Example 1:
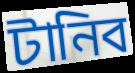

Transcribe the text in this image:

টানিব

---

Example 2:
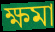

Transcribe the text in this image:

ক্ষমা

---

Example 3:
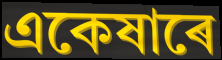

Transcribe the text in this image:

একেষাৰে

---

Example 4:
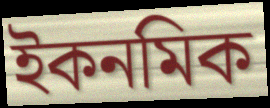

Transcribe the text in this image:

ইকনমিক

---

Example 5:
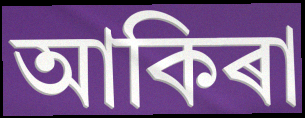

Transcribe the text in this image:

আকিৰা